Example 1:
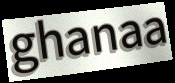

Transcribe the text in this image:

ghanaa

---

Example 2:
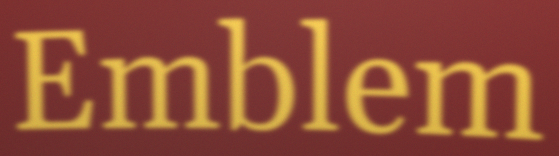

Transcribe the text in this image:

Emblem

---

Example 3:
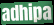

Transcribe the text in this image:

adhipa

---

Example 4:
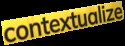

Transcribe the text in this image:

contextualize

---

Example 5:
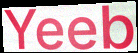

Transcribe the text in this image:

Yeeb